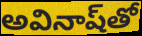
అవినాష్‌తో